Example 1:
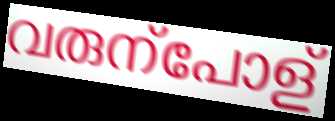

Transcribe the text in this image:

വരുന്പോള്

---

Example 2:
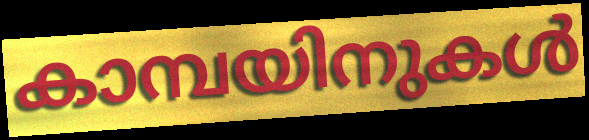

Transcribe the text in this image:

കാമ്പയിനുകൾ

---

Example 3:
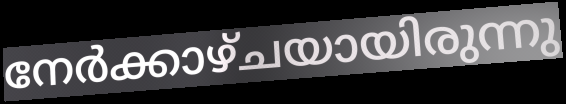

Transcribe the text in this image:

നേർക്കാഴ്ചയായിരുന്നു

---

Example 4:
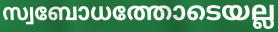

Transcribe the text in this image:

സ്വബോധത്തോടെയല്ല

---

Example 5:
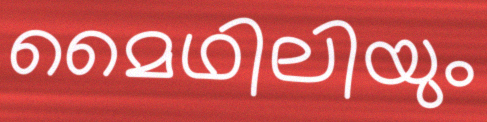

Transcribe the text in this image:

മൈഥിലിയും